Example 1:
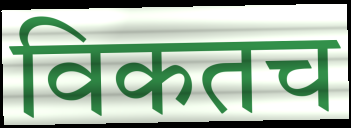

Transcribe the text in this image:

विकतच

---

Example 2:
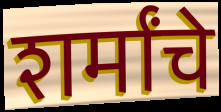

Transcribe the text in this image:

शर्मांचे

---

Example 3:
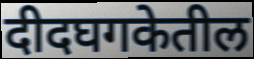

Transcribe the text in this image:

दीदघगकेतील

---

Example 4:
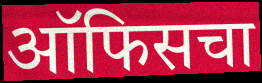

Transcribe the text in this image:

ऑफिसचा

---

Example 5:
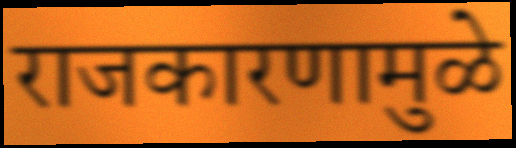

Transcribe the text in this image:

राजकारणामुळे